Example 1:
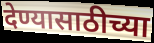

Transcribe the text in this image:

देण्यासाठीच्या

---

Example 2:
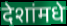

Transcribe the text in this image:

देशांमधे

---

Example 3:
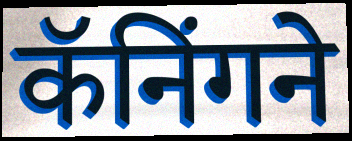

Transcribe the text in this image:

कॅनिंगने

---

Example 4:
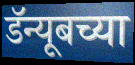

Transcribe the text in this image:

डॅन्यूबच्या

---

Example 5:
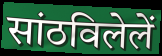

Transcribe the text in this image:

सांठविलेलें